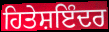
ਹਿਤੇਸ਼ਇੰਦਰ